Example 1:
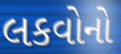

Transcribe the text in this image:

લકવોનો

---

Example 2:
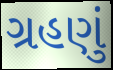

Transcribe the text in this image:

ગ્રહણું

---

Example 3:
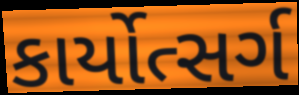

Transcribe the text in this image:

કાર્યોત્સર્ગ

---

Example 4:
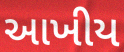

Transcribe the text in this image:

આખીય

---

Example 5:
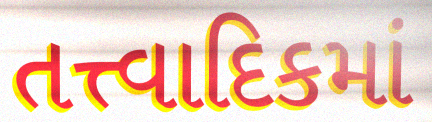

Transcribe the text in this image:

તત્ત્વાદિકમાં